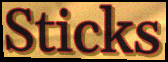
Sticks